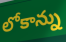
లోకాన్ను